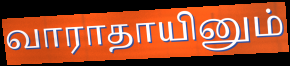
வாராதாயினும்